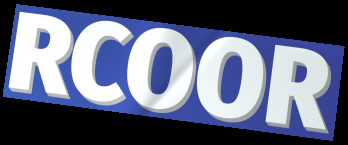
RCOOR